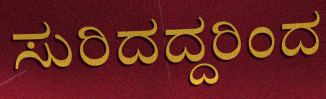
ಸುರಿದದ್ದರಿಂದ